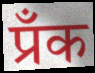
प्रँक